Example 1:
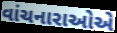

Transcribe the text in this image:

વાંચનારાઓએ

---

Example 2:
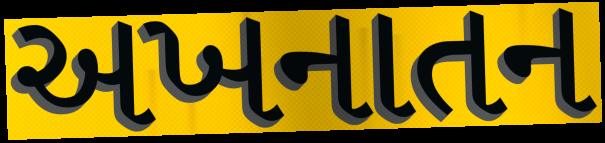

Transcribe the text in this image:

અખનાતન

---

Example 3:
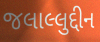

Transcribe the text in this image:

જલાલ્લુદ્દીન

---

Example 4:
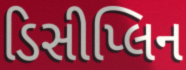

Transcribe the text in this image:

ડિસીપ્લિન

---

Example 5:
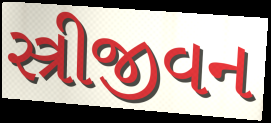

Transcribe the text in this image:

સ્ત્રીજીવન